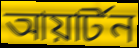
আয়ার্টন